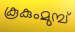
കൂകുംമുമ്പ്